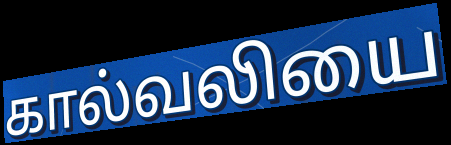
கால்வலியை